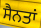
ਸੈਨਤਾਂ